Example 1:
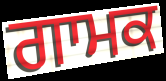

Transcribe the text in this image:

ਗਾਮਕ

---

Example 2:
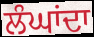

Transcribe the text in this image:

ਲੰਘਾਂਦਾ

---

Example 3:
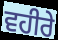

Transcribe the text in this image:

ਵਹੀਰੇ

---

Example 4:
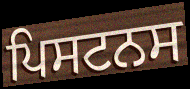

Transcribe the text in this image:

ਪਿਸਟਨਸ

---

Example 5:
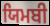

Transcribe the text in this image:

ਯਿਮਬੀ